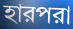
হারপরা